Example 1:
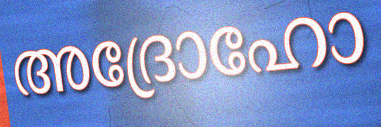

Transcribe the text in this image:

അദ്രോഹോ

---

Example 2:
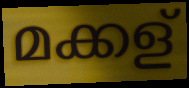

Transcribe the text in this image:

മക്കള്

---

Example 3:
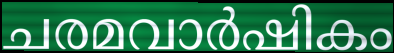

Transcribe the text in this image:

ചരമവാർഷികം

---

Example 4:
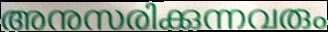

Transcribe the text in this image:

അനുസരിക്കുന്നവരും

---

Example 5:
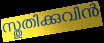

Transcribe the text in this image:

സ്തുതിക്കുവിൻ